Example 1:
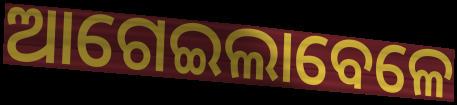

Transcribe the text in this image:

ଆଗେଇଲାବେଳେ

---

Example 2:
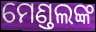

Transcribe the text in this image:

ମେଣ୍ଡଲଙ୍କ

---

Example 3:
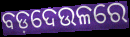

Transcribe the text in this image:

ବଡ଼ଦେଉଳରେ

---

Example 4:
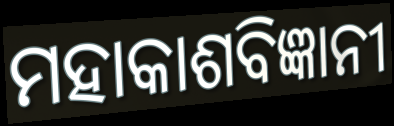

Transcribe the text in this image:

ମହାକାଶବିଜ୍ଞାନୀ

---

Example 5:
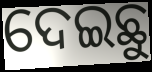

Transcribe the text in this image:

ଦେଇଛୁ